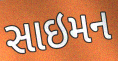
સાઇમન